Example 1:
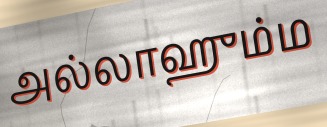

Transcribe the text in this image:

அல்லாஹும்ம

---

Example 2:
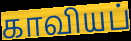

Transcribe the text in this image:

காவியப்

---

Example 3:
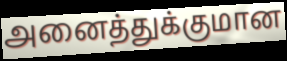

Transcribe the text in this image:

அனைத்துக்குமான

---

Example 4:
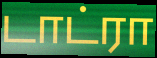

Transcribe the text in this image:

டாட்ரா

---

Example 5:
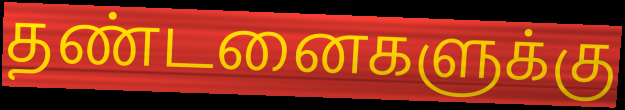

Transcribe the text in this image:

தண்டனைகளுக்கு